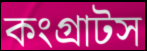
কংগ্রাটস